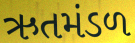
ઋતમંડળ